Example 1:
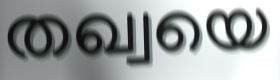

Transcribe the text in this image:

തഖ്വയെ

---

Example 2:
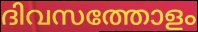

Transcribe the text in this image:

ദിവസത്തോളം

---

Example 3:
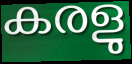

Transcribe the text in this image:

കരളു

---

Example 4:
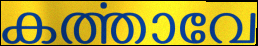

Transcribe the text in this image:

കൎത്താവേ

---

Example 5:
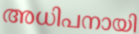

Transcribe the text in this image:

അധിപനായി